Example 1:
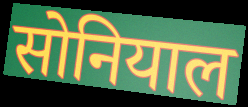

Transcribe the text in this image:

सोनियाल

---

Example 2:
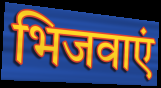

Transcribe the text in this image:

भिजवाएं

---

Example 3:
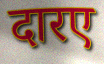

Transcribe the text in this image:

दारए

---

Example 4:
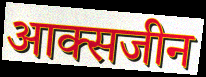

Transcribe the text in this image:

आक्सजीन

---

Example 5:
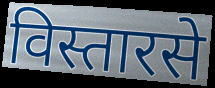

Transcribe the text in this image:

विस्तारसे